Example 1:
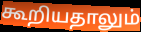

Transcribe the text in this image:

கூறியதாலும்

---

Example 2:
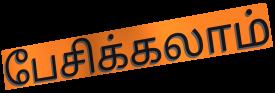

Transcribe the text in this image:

பேசிக்கலாம்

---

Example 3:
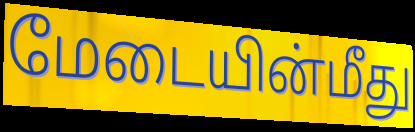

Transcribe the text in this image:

மேடையின்மீது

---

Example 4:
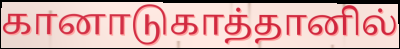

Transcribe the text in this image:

கானாடுகாத்தானில்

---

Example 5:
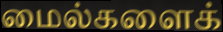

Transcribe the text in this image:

மைல்களைக்